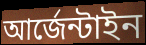
আর্জেন্টাইন